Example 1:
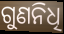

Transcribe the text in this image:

ଗୁଣନିଧି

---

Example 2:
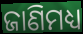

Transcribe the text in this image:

ଜାଣିମଧ୍ୟ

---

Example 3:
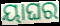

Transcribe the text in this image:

ୟାଘର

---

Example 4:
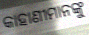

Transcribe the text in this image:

କାହାଣୀମାନଙ୍କୁ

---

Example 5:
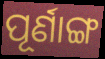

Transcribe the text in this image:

ପୂର୍ଣାଙ୍ଗ